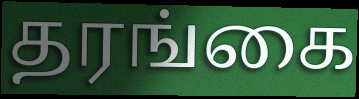
தரங்கை